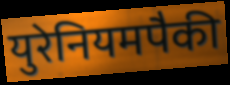
युरेनियमपैकी